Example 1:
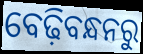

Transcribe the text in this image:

ବେଢ଼ିବନ୍ଧନରୁ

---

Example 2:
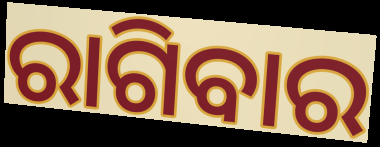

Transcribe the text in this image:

ରାଗିବାର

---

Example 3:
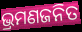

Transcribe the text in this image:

ଭ୍ରମଣଜନିତ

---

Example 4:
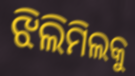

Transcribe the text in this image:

ଝିଲିମିଲକୁ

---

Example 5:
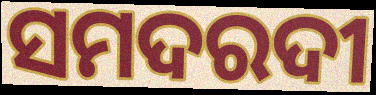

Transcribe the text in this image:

ସମଦରଦୀ